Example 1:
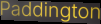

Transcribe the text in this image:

Paddington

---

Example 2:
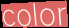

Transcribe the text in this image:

color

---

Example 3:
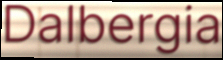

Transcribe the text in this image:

Dalbergia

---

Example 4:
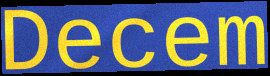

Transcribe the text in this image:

Decem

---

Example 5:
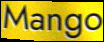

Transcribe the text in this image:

Mango